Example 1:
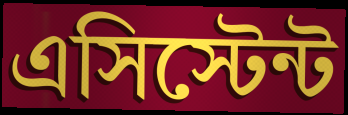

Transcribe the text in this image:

এসিস্টেন্ট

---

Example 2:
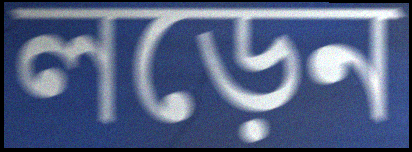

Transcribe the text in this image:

লড়েন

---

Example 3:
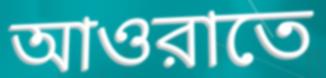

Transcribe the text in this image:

আওরাতে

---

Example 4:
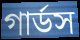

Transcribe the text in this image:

গার্ডস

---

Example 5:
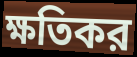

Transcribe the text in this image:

ক্ষতিকর